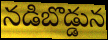
నడిబొడ్డున